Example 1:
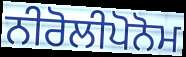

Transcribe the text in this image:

ਨੀਰੋਲੀਪੋਨੋਮ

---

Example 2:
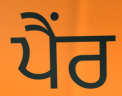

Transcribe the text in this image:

ਪੈਂਰ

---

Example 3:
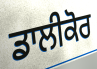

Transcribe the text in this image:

ਡਾਲੀਕੋਰ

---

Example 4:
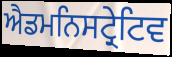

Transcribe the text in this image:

ਐਡਮਨਿਸਟ੍ਰੇਟਿਵ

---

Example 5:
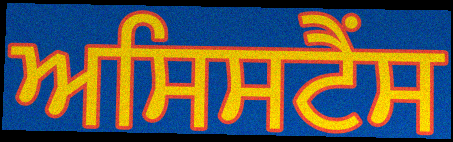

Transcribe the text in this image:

ਅਸਿਸਟੈਂਸ